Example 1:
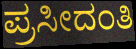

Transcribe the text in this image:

ಪ್ರಸೀದಂತಿ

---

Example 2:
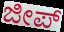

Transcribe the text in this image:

ಜೀಪ್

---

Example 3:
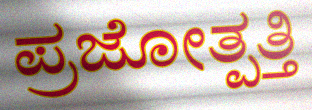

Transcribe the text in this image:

ಪ್ರಜೋತ್ಪತ್ತಿ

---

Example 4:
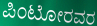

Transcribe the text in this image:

ಪಿಂಟೋರವರ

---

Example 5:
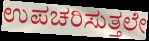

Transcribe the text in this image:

ಉಪಚರಿಸುತ್ತಲೇ